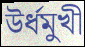
উর্ধমুখী